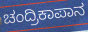
ಚಂದ್ರಿಕಾಪಾನ